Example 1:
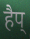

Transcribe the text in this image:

हैप्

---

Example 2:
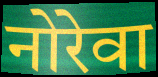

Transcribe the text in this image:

नोरेवा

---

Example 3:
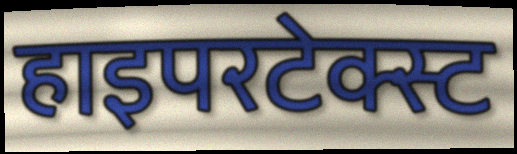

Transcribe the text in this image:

हाइपरटेक्स्ट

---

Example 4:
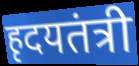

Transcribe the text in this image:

हृदयतंत्री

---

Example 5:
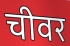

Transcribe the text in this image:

चीवर